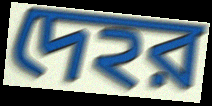
দেহর